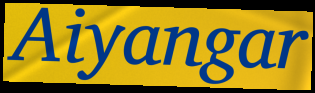
Aiyangar